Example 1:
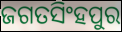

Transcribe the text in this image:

ଜଗତସିଂହପୁର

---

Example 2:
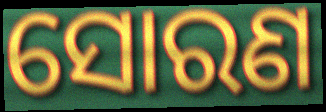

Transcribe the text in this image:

ସୋରଣ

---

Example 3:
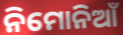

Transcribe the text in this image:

ନିମୋନିଆଁ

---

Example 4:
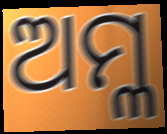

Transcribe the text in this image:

ଅମ୍ଳ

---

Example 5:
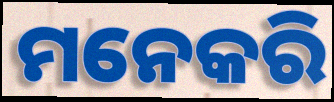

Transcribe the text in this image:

ମନେକରି